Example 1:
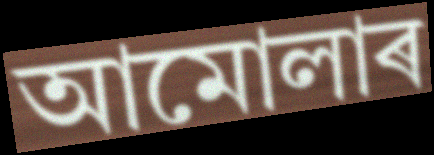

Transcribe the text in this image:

আমোলাৰ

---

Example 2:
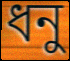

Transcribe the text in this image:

ধনু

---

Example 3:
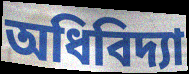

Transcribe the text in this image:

অধিবিদ্যা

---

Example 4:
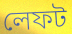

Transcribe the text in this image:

লেফট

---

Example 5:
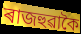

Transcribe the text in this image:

ৰাজহুৱাকৈ